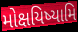
મોક્ષયિષ્યામિ